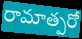
రామాత్పరో